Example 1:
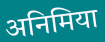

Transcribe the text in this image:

अनिमिया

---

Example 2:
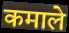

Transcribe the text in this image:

कमाले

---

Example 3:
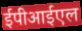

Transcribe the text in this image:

ईपीआईएल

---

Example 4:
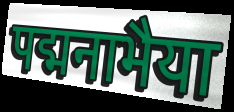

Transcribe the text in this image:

पद्मनाभैया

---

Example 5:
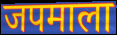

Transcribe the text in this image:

जपमाला